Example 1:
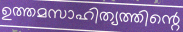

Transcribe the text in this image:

ഉത്തമസാഹിത്യത്തിന്റെ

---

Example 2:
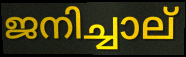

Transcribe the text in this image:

ജനിച്ചാല്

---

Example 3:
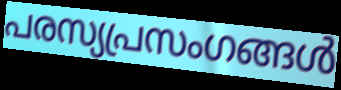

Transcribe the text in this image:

പരസ്യപ്രസംഗങ്ങൾ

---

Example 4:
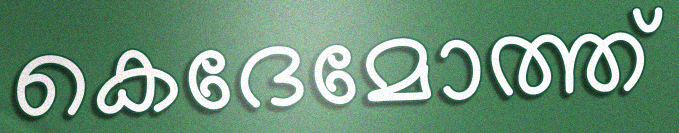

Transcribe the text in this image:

കെദേമോത്ത്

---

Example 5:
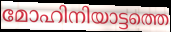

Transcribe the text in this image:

മോഹിനിയാട്ടത്തെ